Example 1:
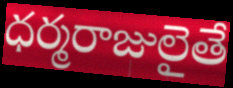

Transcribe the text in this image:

ధర్మరాజులైతే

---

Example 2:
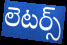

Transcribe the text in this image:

లెటర్స్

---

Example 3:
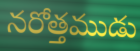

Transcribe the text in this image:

నరోత్తముడు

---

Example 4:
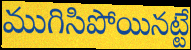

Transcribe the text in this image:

ముగిసిపోయినట్టే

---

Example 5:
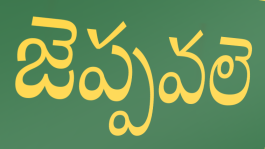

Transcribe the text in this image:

జెప్పవలె